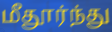
மீதூர்ந்து